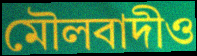
মৌলবাদীও